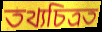
তথ্যচিত্ৰত